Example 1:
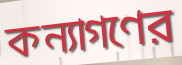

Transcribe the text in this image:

কন্যাগণের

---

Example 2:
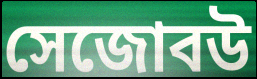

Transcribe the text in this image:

সেজোবউ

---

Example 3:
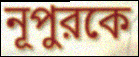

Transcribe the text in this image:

নূপুরকে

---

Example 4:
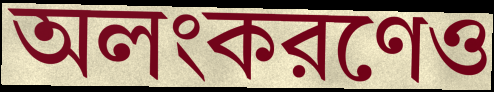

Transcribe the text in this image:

অলংকরণেও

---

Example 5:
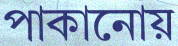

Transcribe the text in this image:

পাকানোয়